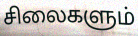
சிலைகளும்